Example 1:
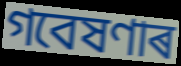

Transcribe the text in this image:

গবেষণাৰ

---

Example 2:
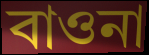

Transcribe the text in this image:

বাওনা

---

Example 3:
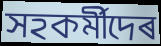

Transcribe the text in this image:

সহকৰ্মীদেৰ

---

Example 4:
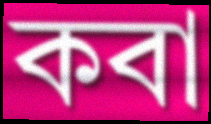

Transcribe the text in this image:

কবা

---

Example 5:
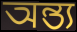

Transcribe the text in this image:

অন্ত্য